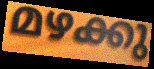
മഴക്കു